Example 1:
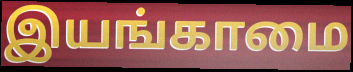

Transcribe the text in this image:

இயங்காமை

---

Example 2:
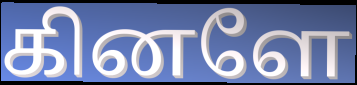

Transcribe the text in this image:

கினளே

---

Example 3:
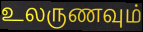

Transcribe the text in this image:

உலருணவும்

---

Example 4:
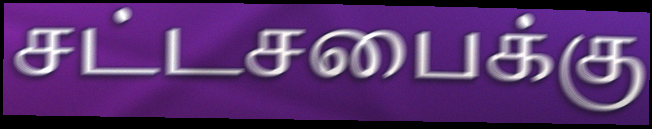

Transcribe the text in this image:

சட்டசபைக்கு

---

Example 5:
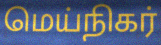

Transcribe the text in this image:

மெய்நிகர்